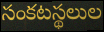
సంకటస్థలుల